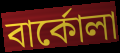
বার্কোলা